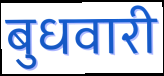
बुधवारी